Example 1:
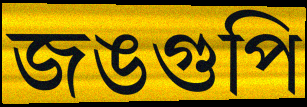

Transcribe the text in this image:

জঙগুপি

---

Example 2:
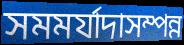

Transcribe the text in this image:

সমমর্যাদাসম্পন্ন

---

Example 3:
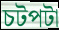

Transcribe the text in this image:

চটপটা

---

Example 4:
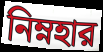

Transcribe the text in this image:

নিম্নহার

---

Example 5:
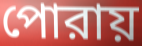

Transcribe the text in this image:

পোরায়